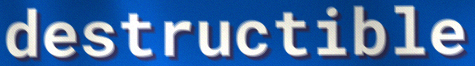
destructible